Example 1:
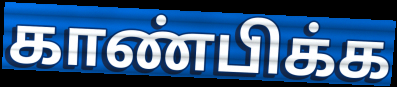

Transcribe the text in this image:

காண்பிக்க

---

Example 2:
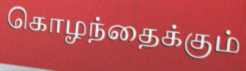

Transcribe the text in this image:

கொழந்தைக்கும்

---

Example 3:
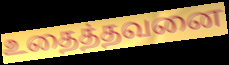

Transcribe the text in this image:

உதைத்தவனை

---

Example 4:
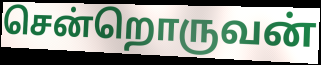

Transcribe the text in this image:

சென்றொருவன்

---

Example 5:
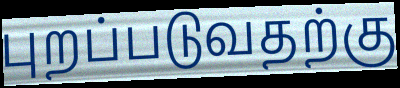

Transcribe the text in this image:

புறப்படுவதற்கு